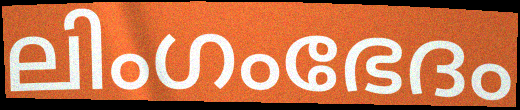
ലിംഗംഭേദം